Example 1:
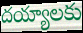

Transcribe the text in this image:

దయ్యాలకు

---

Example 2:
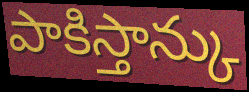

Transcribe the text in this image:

పాకిస్తాన్కు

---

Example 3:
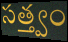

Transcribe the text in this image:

సత్త్వం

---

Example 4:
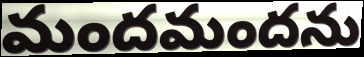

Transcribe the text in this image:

మందమందను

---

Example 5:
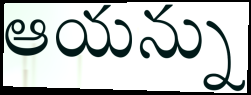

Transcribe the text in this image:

ఆయన్ను